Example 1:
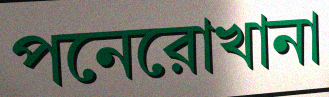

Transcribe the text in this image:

পনেরোখানা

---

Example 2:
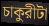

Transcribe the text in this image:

চাকুরীটা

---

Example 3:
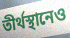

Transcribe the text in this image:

তীর্থস্থানেও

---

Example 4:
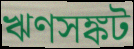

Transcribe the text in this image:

ঋণসঙ্কট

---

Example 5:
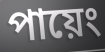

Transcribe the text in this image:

পায়েং